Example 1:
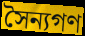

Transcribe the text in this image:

সৈন্যগণ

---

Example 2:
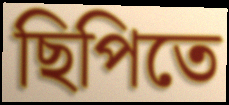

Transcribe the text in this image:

ছিপিতে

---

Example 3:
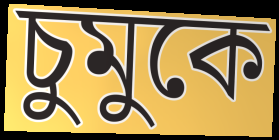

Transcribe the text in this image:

চুমুকে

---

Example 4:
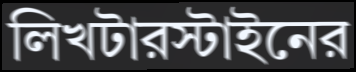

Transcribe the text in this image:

লিখটারস্টাইনের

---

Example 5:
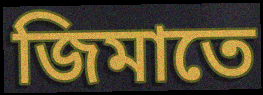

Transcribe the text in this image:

জিমাতে